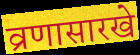
व्रणासारखे